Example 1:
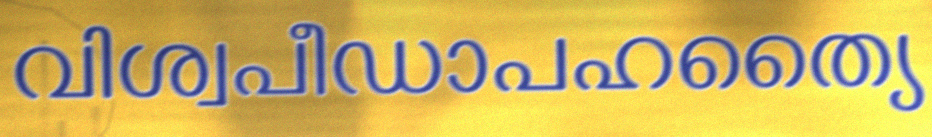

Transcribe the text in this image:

വിശ്വപീഡാപഹത്യൈ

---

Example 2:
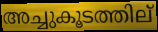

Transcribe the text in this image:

അച്ചുകൂടത്തില്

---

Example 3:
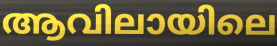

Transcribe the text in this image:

ആവിലായിലെ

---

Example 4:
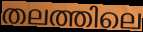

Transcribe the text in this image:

തലത്തിലെ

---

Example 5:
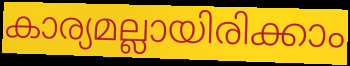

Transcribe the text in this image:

കാര്യമല്ലായിരിക്കാം